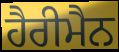
ਹੈਰੀਮੈਨ